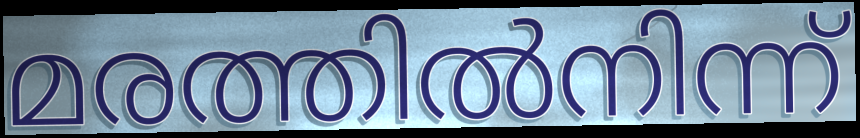
മരത്തിൽനിന്ന്